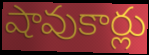
షావుకార్లు